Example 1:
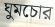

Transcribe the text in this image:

ঘুমচোর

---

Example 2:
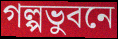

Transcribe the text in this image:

গল্পভুবনে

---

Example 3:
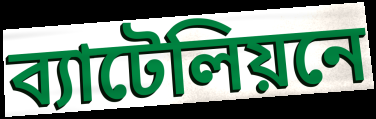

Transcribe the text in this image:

ব্যাটেলিয়নে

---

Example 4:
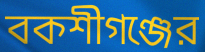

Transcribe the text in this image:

বকশীগঞ্জের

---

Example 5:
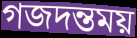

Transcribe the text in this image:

গজদন্তময়